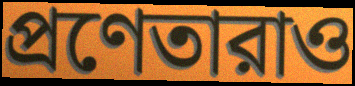
প্রণেতারাও